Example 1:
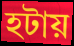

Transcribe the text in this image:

হটায়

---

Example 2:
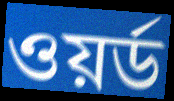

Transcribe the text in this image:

ওয়র্ড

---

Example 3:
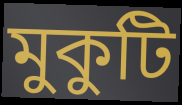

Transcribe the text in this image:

মুকুটি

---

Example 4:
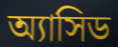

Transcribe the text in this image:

অ্যাসিড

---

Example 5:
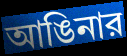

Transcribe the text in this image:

আঙিনার